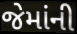
જેમાંની